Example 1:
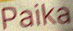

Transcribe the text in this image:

Paika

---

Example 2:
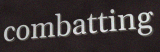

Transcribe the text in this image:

combatting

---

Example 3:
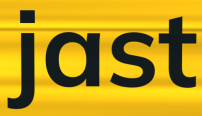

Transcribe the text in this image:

jast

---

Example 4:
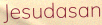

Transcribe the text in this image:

Jesudasan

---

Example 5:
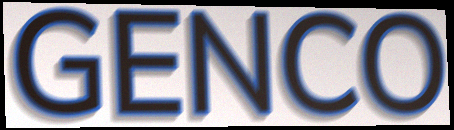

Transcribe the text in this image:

GENCO